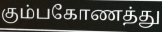
கும்பகோணத்து